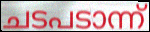
ചടപടാന്ന്